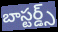
బాస్టర్డ్స్